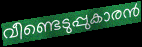
വീണ്ടെടുപ്പുകാരൻ